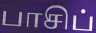
பாசிப்